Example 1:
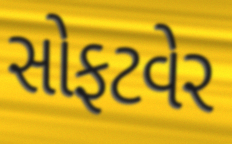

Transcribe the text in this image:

સોફટવેર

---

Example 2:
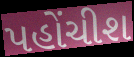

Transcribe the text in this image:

પહોંચીશ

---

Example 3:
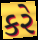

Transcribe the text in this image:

કરે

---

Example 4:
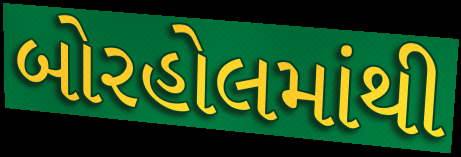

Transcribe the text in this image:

બોરહોલમાંથી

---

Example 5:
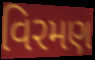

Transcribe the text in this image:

વિરમણ